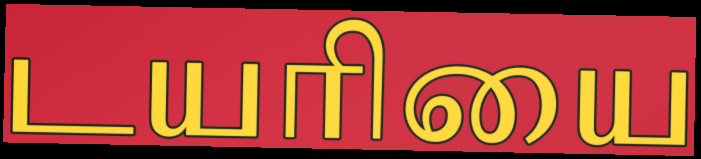
டயரியை